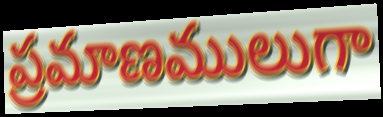
ప్రమాణములుగా